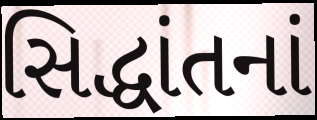
સિદ્ધાંતનાં